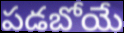
పడబోయే